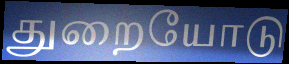
துறையோடு